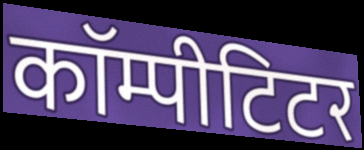
कॉम्पीटिटर